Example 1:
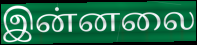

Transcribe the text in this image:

இன்னலை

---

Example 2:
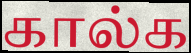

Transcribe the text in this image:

கால்க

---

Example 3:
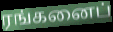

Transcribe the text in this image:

ரங்கனைப்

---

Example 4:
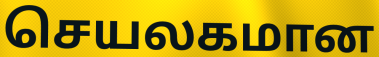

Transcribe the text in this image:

செயலகமான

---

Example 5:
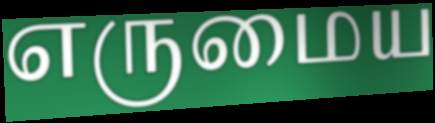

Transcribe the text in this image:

எருமைய